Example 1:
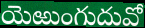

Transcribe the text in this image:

యెఱుంగుదువో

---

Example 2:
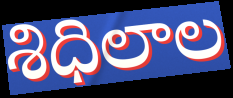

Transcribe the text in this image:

శిధిలాల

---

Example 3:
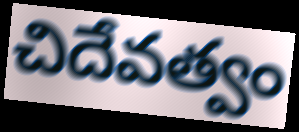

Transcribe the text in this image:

చిదేవత్వం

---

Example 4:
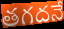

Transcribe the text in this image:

తగదనే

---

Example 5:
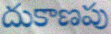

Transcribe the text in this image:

దుకాణపు